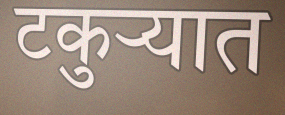
टकुऱ्यात